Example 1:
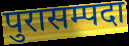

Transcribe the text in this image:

पुरासम्पदा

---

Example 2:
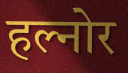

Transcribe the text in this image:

हल्नोर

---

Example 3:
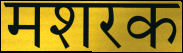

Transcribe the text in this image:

मशरक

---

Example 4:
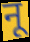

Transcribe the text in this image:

नू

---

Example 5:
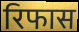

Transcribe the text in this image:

रिफास